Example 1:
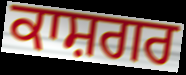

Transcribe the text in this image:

ਕਾਸ਼ਗਰ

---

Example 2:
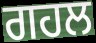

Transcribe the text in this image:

ਗਹਲ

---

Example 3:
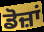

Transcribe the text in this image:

ਡੋਜ਼ਾਂ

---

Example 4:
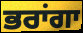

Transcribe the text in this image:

ਭਰਾਂਗਾ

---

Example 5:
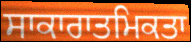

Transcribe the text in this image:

ਸਾਕਾਰਾਤਮਿਕਤਾ